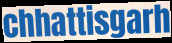
chhattisgarh